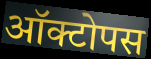
ऑक्टोपस